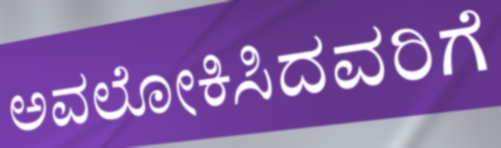
ಅವಲೋಕಿಸಿದವರಿಗೆ